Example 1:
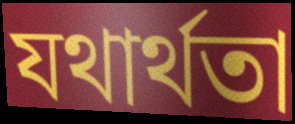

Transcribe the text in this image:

যথাৰ্থতা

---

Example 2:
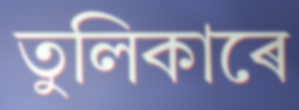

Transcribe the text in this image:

তুলিকাৰে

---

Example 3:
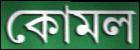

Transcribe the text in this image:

কোমল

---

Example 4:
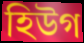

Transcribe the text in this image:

হিউগ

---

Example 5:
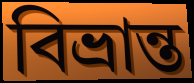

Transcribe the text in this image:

বিভ্ৰান্ত